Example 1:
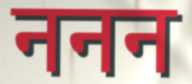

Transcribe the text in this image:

ननन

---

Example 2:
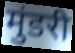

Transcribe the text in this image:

मुंडरी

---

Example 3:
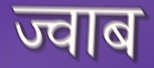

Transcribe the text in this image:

ज्वाब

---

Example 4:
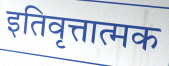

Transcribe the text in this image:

इतिवृत्तात्मक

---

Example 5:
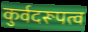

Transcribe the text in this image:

कुर्वदरूपत्व